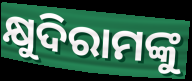
କ୍ଷୁଦିରାମଙ୍କୁ